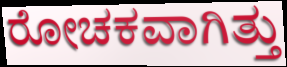
ರೋಚಕವಾಗಿತ್ತು